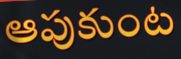
ఆపుకుంట